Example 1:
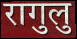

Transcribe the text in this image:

रागुलु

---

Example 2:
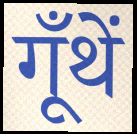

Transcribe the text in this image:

गूँथें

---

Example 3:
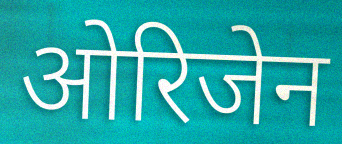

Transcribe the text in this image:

ओरिजेन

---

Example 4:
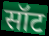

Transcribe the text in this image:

सॉट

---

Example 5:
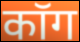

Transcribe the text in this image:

कॉग